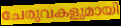
ചേരുവകളുമായി